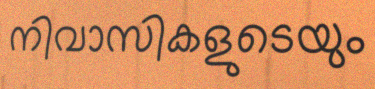
നിവാസികളുടെയും